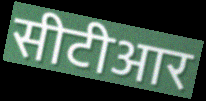
सीटीआर